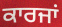
ਕਾਰਜਾਂ